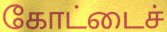
கோட்டைச்